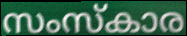
സംസ്കാര